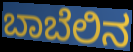
ಬಾಬೆಲಿನ